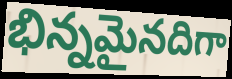
భిన్నమైనదిగా